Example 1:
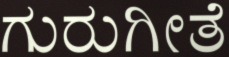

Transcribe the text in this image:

ಗುರುಗೀತೆ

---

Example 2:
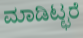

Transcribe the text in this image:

ಮಾಡಿಟ್ಟರೆ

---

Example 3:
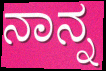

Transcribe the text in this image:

ನಾನ್ನ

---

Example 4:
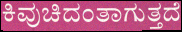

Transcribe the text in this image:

ಕಿವುಚಿದಂತಾಗುತ್ತದೆ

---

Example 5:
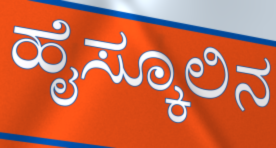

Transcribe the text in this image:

ಹೈಸ್ಕೂಲಿನ